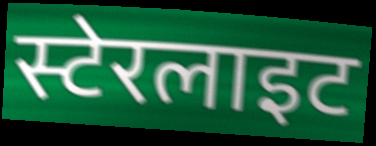
स्टेरलाइट